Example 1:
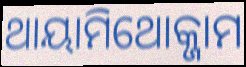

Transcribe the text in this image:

ଥାୟାମିଥୋକ୍ଜାମ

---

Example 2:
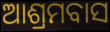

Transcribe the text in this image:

ଆଶ୍ରମବାସ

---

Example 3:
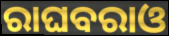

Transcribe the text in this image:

ରାଘବରାଓ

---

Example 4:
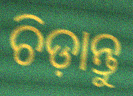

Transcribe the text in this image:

ଚିଡ଼ାନ୍ତୁ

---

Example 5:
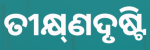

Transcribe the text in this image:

ତୀକ୍ଷ୍‌ଣଦୃଷ୍ଟି